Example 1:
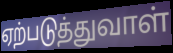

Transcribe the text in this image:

ஏற்படுத்துவாள்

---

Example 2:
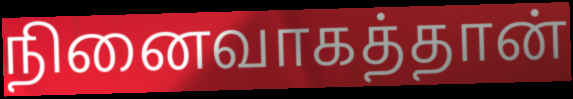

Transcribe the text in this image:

நினைவாகத்தான்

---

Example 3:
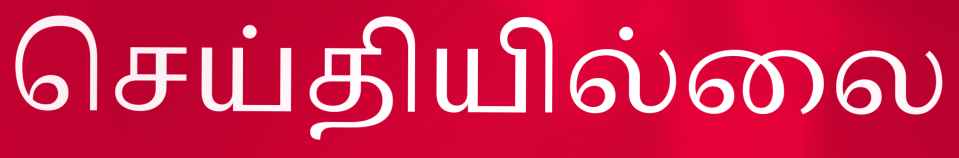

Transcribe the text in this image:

செய்தியில்லை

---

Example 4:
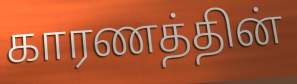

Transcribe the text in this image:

காரணத்தின்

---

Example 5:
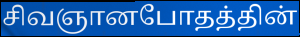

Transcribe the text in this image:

சிவஞானபோதத்தின்